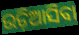
ଉଡ଼ିଆସିବା